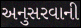
અનુસરવાની